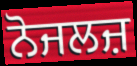
ਨੋਜਲਜ਼